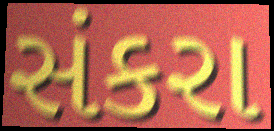
સંકરા